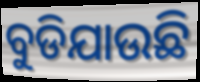
ବୁଡିଯାଉଛି